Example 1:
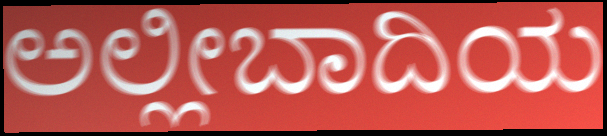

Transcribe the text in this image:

ಅಲ್ಲೀಬಾದಿಯ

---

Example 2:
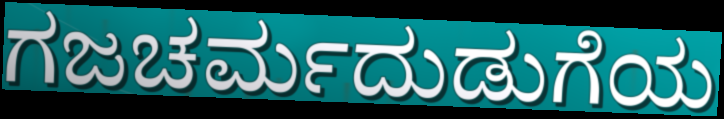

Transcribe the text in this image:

ಗಜಚರ್ಮದುಡುಗೆಯ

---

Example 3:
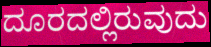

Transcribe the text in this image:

ದೂರದಲ್ಲಿರುವುದು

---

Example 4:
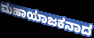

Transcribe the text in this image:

ಮಹಾಯಾಜಕನಾದ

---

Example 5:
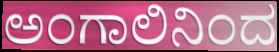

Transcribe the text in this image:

ಅಂಗಾಲಿನಿಂದ